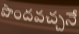
పొందవచ్చనే